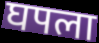
घपला